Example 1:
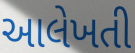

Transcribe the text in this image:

આલેખતી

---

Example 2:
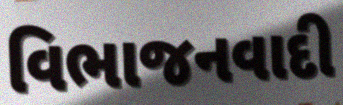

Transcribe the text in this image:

વિભાજનવાદી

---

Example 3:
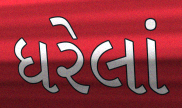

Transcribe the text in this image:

ધરેલાં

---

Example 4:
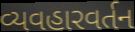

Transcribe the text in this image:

વ્યવહારવર્તન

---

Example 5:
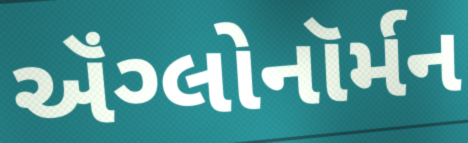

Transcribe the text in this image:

ઍંગ્લોનૉર્મન